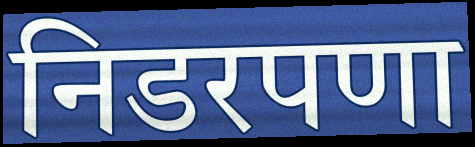
निडरपणा